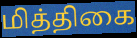
மித்திகை